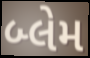
બ્લેમ